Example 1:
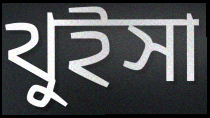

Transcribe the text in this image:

থুইসা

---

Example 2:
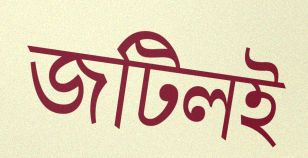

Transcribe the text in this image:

জটিলই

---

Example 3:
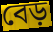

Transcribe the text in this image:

বেড়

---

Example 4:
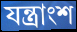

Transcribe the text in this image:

যন্ত্রাংশ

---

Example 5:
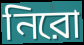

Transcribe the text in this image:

নিরো